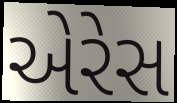
એરેસ